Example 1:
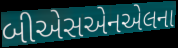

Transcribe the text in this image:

બીએસએનએલના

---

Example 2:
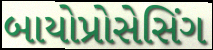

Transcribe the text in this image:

બાયોપ્રોસેસિંગ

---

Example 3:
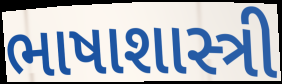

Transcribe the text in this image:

ભાષાશાસ્ત્રી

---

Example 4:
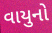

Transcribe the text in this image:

વાયુનો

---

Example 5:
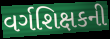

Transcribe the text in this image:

વર્ગશિક્ષકની